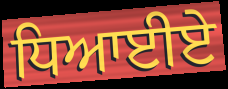
ਧਿਆਈਏ